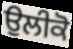
ਉਲੀਕੋ